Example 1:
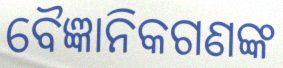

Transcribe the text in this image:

ବୈଜ୍ଞାନିକଗଣଙ୍କ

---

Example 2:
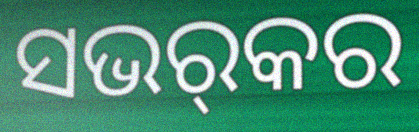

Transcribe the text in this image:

ସଭର୍‌କର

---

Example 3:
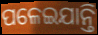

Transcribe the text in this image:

ପଳେଇଯାନ୍ତି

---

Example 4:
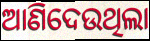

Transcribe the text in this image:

ଆଣିଦେଉଥିଲା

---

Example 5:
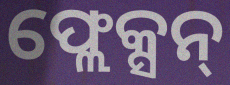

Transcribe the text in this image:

ଫ୍ଲେକ୍ସନ୍